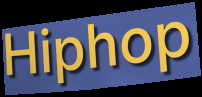
Hiphop